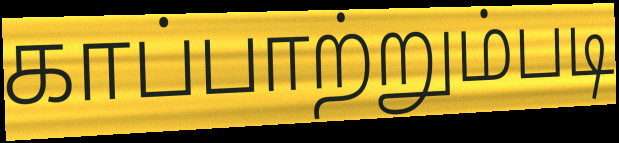
காப்பாற்றும்படி